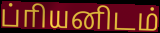
ப்ரியனிடம்